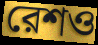
রেশও